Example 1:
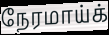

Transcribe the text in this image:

நேரமாய்க்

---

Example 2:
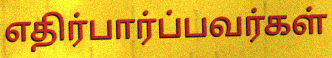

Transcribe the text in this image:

எதிர்பார்ப்பவர்கள்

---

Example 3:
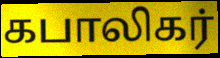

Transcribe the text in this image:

கபாலிகர்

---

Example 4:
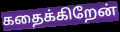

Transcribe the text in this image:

கதைக்கிறேன்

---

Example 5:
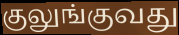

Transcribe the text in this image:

குலுங்குவது